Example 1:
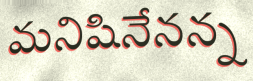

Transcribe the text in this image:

మనిషినేనన్న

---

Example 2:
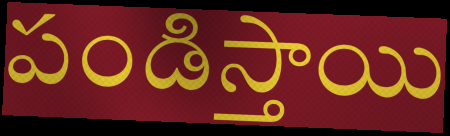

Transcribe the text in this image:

పండిస్తాయి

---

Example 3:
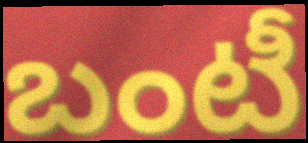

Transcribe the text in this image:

బంటీ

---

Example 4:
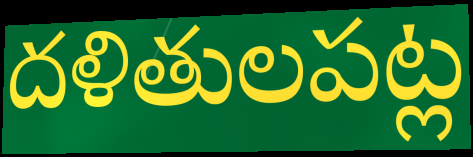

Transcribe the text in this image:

దళితులపట్ల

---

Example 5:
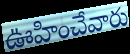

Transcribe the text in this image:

ఊహించేవారు